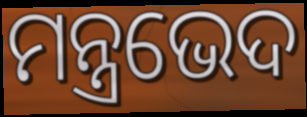
ମନ୍ତ୍ରଭେଦ